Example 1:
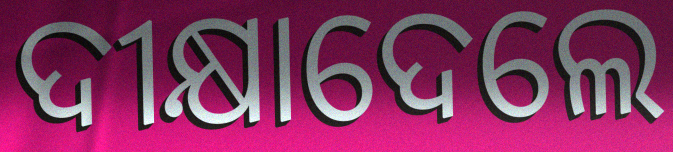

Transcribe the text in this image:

ଦୀକ୍ଷାଦେଲେ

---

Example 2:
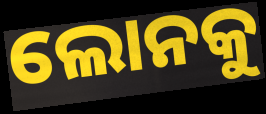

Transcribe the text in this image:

ଲୋନକୁ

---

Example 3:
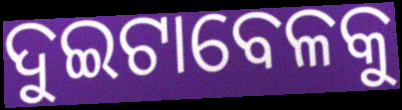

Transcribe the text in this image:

ଦୁଇଟାବେଳକୁ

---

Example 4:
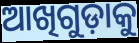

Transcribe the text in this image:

ଆଖିଗୁଡ଼ାକୁ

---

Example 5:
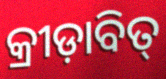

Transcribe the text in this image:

କ୍ରୀଡ଼ାବିତ୍